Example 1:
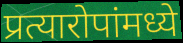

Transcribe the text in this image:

प्रत्यारोपांमध्ये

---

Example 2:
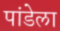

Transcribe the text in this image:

पांडेला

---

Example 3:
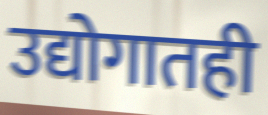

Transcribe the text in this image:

उद्योगातही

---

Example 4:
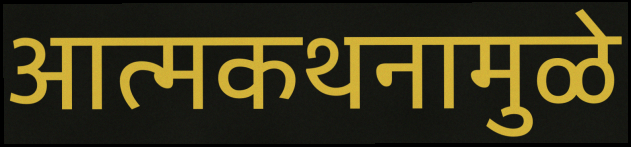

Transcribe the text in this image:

आत्मकथनामुळे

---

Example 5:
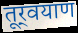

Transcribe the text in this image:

तूर्वयाण